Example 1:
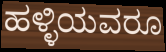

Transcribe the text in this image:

ಹಳ್ಳಿಯವರೂ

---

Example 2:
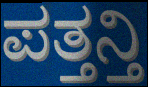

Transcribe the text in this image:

ಪತ್ತನ್ತಿ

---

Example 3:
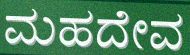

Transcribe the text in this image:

ಮಹದೇವ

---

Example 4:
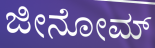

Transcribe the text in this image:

ಜೀನೋಮ್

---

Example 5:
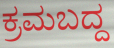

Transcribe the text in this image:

ಕ್ರಮಬದ್ದ